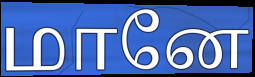
மானே